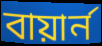
বায়ার্ন